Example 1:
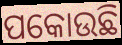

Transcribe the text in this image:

ପକୋଉଛି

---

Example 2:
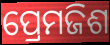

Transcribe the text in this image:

ପ୍ରେମଜିଶ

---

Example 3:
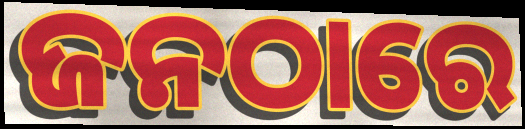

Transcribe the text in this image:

ଜନଠାରେ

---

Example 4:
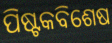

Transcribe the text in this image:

ପିଷ୍ଟକବିଶେଷ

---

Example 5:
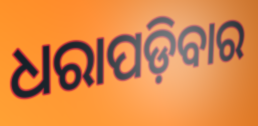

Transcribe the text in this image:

ଧରାପଡ଼ିବାର